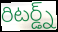
రిటర్డ్న్